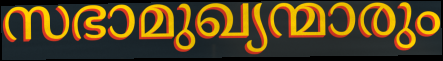
സഭാമുഖ്യന്മാരും